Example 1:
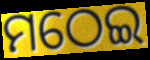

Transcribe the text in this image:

ମଠେଇ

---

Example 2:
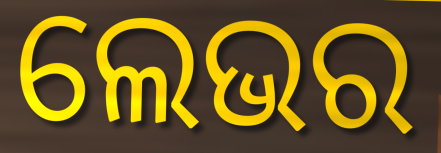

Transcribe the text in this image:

ଲେଭର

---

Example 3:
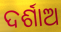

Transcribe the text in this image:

ଦର୍ଶାଅ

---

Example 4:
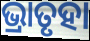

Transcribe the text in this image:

ଭ୍ରାତୃହା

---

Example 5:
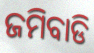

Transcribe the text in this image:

ଜମିବାଡି